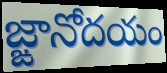
జ్ఙానోదయం